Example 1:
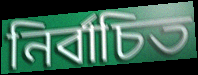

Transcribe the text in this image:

নির্বাচিত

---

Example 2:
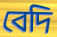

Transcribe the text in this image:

বেদি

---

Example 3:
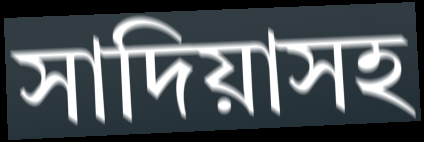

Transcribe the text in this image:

সাদিয়াসহ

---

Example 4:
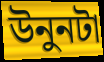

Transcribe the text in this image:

উনুনটা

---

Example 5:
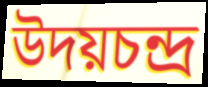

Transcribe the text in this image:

উদয়চন্দ্র